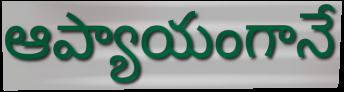
ఆప్యాయంగానే